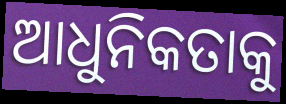
ଆଧୁନିକତାକୁ